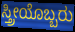
ಸ್ತ್ರೀಯೊಬ್ಬರು